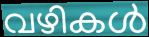
വഴികൾ